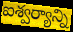
ఐశ్వర్యాన్ని